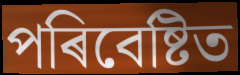
পৰিবেষ্টিত